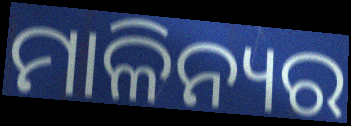
ମାଳିନ୍ୟର